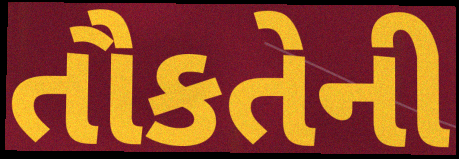
તૌકતેની